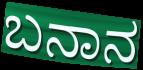
ಬನಾನ